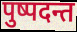
पुष्पदन्त